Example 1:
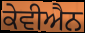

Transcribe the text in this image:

ਕੇਵੀਐਨ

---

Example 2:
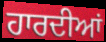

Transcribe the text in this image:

ਹਾਰਦੀਆਂ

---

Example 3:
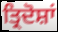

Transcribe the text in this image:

ਤ੍ਰਿਦੋਸ਼ਾਂ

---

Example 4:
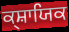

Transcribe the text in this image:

ਕ੍ਸ਼ਾਯਿਕ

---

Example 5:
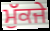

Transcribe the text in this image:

ਮੁੱਕਜੇ